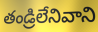
తండ్రిలేనివాని